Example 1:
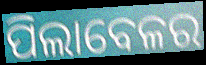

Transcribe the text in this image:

ପିଲାବେଳର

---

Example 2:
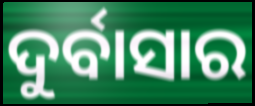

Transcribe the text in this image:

ଦୁର୍ବାସାର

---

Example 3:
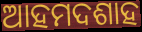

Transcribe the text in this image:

ଆହମଦଶାହ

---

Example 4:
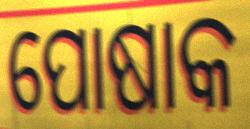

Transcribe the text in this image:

ପୋଷାକ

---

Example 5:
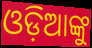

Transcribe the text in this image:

ଓଡ଼ିଆଙ୍କୁ